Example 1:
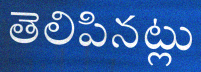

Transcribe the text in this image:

తెలిపినట్లు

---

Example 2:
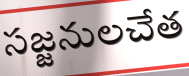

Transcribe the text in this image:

సజ్జనులచేత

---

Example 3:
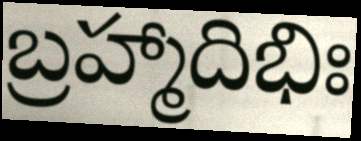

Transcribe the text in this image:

బ్రహ్మాదిభిః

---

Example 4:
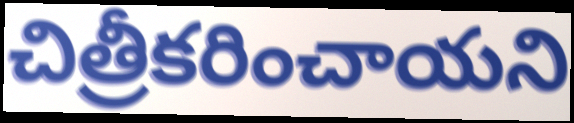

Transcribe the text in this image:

చిత్రీకరించాయని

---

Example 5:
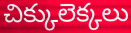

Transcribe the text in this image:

చిక్కులెక్కలు